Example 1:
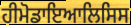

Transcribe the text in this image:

ਹੀਮੋਡਾਇਆਲਿਸਿਸ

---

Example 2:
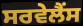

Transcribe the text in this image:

ਸਰਵੇਲੈਂਸ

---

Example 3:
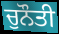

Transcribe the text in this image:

ਚੁਨੌਤੀ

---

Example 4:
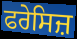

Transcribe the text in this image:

ਫਰੇਸਿਜ਼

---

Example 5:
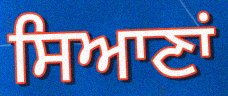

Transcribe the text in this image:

ਸਿਆਣਾਂ